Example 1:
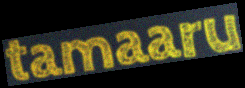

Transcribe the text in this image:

tamaaru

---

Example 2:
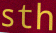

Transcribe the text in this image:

sth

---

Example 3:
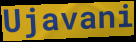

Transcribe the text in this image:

Ujavani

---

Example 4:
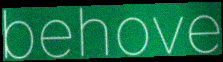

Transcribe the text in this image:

behove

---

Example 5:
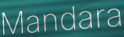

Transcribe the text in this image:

Mandara